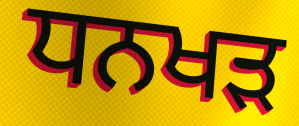
ਧਨਖਡ਼